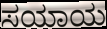
ಸಯಾಯ